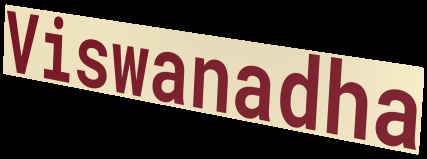
Viswanadha